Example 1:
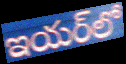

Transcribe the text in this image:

ఇయర్‌లో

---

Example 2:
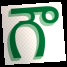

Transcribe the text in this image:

గౌ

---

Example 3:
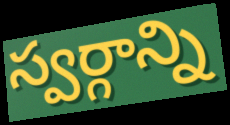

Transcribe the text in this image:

స్వర్గాన్ని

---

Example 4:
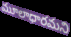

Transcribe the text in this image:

మూలాధారమని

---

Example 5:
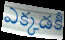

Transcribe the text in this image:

ఎక్కడకీ